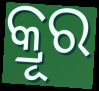
କ୍ରୂର